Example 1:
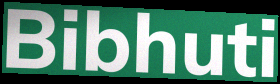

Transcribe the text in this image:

Bibhuti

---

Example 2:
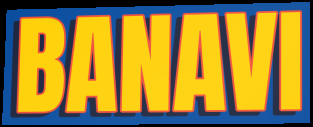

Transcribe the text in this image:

BANAVI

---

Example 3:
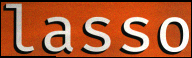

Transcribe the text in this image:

lasso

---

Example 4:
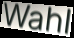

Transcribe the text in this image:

Wahl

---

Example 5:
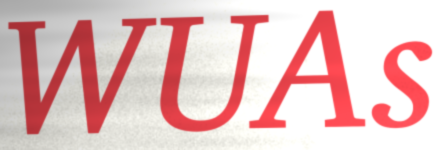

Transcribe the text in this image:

WUAs